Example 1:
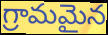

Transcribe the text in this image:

గ్రామమైన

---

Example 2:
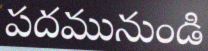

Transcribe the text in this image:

పదమునుండి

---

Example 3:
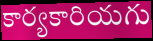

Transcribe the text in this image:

కార్యకారియగు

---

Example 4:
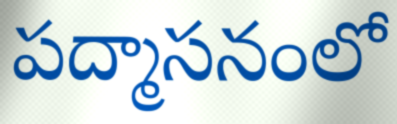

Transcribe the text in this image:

పద్మాసనంలో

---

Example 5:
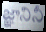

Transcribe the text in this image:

జ్ఞానినీ